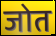
जोत